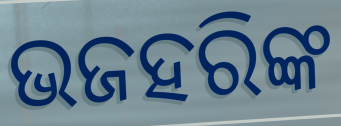
ଭଜହରିଙ୍କ